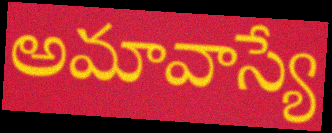
అమావాస్యే